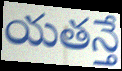
యతన్తే